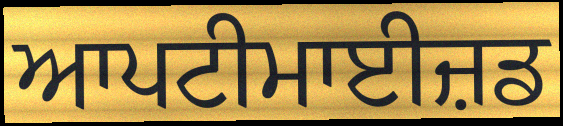
ਆਪਟੀਮਾਈਜ਼ਡ